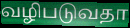
வழிபடுவதா